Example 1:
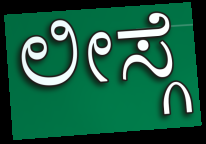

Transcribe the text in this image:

ಲೀಸ್ಗೆ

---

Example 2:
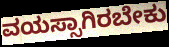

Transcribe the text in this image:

ವಯಸ್ಸಾಗಿರಬೇಕು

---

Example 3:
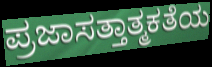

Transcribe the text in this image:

ಪ್ರಜಾಸತ್ತಾತ್ಮಕತೆಯ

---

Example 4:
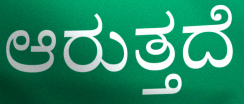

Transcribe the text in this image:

ಆರುತ್ತದೆ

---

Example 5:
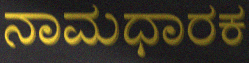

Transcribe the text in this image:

ನಾಮಧಾರಕ